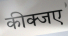
कीक्जए